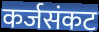
कर्जसंकट